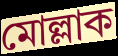
মোল্লাক